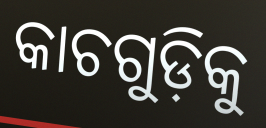
କାଚଗୁଡ଼ିକୁ